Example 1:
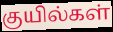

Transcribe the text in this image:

குயில்கள்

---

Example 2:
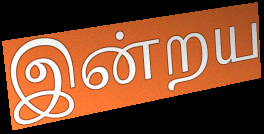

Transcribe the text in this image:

இன்றய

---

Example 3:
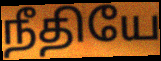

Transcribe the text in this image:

நீதியே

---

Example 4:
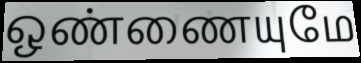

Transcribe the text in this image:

ஒண்ணையுமே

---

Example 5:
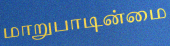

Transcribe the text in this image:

மாறுபாடின்மை